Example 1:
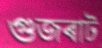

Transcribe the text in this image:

গুজৰাট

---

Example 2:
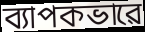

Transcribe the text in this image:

ব্যাপকভাৱে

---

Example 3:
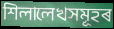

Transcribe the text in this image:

শিলালেখসমূহৰ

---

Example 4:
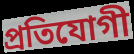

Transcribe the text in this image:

প্ৰতিযোগী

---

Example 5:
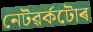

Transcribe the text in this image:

নেটৱৰ্কটোৰ